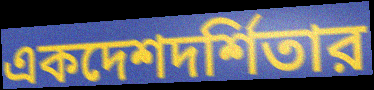
একদেশদর্শিতার